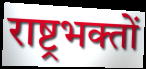
राष्ट्रभक्तों